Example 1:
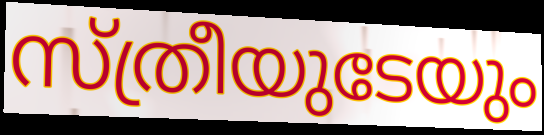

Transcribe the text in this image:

സ്ത്രീയുടേയും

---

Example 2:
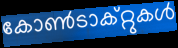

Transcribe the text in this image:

കോൺടാക്റ്റുകൾ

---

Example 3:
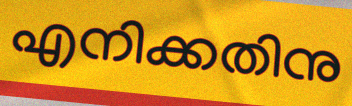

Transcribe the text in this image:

എനിക്കതിനു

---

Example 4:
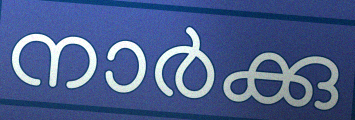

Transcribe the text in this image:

നാർക്കു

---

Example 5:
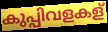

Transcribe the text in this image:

കുപ്പിവളകള്